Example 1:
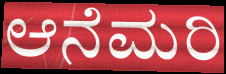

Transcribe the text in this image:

ಆನೆಮರಿ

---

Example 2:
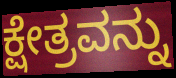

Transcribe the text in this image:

ಕ್ಷೇತ್ರವನ್ನು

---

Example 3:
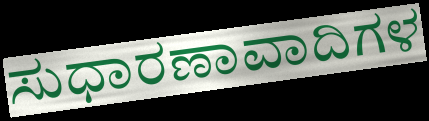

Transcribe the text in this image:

ಸುಧಾರಣಾವಾದಿಗಳ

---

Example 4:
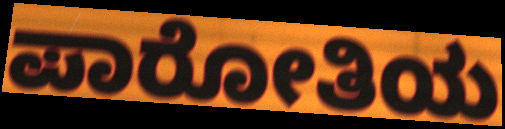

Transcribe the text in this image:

ಪಾರೋತಿಯ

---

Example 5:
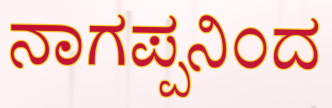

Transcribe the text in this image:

ನಾಗಪ್ಪನಿಂದ